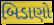
બિડાણો